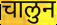
चालुन